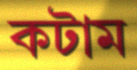
কটাম